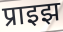
प्राइझ